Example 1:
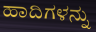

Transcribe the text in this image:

ಹಾದಿಗಳನ್ನು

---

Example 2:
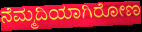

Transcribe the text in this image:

ನೆಮ್ಮದಿಯಾಗಿರೋಣ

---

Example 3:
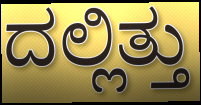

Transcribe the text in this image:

ದಲ್ಲಿತ್ತು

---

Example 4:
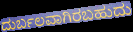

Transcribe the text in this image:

ದುರ್ಬಲವಾಗಿರಬಹುದು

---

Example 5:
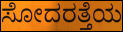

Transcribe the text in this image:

ಸೋದರತ್ತೆಯ